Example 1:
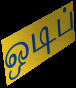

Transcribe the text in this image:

ஒடிப்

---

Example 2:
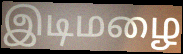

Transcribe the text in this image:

இடிமழை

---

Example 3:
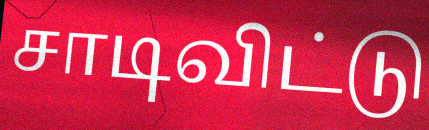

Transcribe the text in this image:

சாடிவிட்டு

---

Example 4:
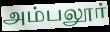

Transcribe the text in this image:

அம்பலூர்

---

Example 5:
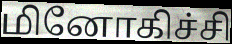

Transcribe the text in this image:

மினோகிச்சி